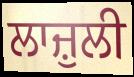
ਲਾਜ਼ੁਲੀ